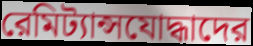
রেমিট্যান্সযোদ্ধাদের